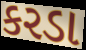
કરડા